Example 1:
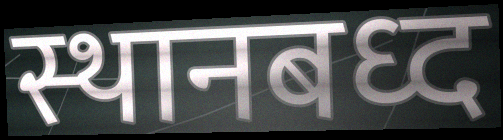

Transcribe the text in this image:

स्थानबध्द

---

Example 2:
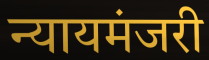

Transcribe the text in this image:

न्यायमंजरी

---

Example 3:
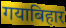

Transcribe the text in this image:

गयाबिहार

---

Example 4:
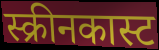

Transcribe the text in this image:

स्क्रीनकास्ट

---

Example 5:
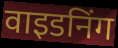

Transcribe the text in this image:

वाइडनिंग